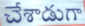
చేశాడుగా